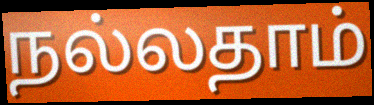
நல்லதாம்